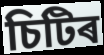
চিটিৰ